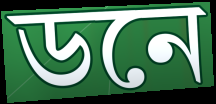
ডনে